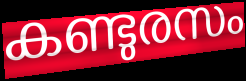
കണ്ടുരസം